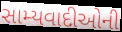
સામ્યવાદીઓની